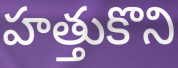
హత్తుకొని